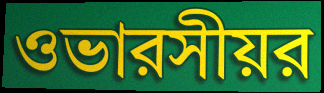
ওভারসীয়র